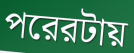
পরেরটায়